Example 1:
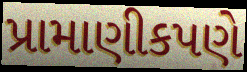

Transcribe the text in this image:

પ્રામાણીકપણે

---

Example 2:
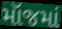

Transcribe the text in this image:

મૉજમાં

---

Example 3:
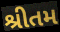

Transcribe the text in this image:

શ્રીતમ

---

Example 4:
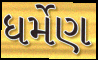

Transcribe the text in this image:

ધર્મેણ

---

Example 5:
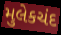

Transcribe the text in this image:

મુલેકચંદ